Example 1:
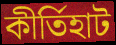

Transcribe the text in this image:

কীর্তিহাট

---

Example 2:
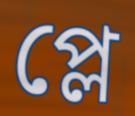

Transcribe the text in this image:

প্লে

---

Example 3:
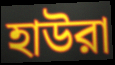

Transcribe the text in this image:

হাউরা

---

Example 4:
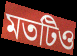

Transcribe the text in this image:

মতটিও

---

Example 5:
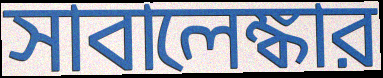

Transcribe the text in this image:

সাবালেঙ্কার